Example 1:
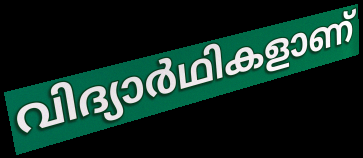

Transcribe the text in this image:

വിദ്യാർഥികളാണ്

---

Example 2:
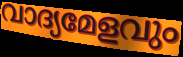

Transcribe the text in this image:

വാദ്യമേളവും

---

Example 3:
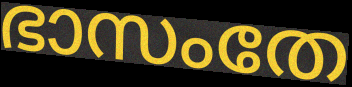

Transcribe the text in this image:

ഭാസംതേ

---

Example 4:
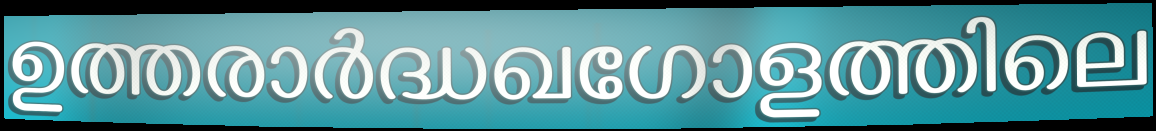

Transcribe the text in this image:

ഉത്തരാർദ്ധഖഗോളത്തിലെ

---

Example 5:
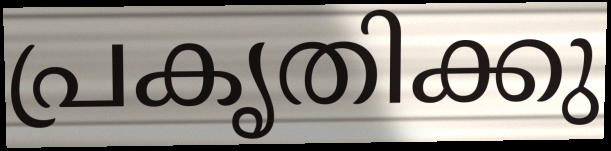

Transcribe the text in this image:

പ്രകൃതിക്കു